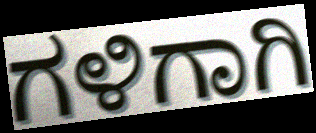
ಗಳಿಗಾಗಿ